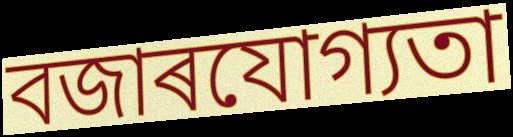
বজাৰযোগ্যতা